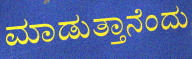
ಮಾಡುತ್ತಾನೆಂದು